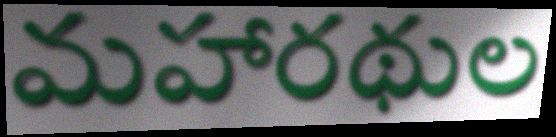
మహారథుల